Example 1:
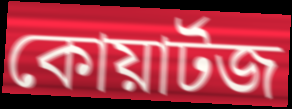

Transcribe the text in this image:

কোয়ার্টজ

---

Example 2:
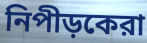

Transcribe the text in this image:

নিপীড়কেরা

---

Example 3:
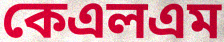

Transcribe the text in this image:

কেএলএম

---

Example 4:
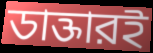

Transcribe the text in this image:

ডাক্তারই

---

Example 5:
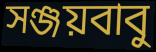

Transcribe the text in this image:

সঞ্জয়বাবু